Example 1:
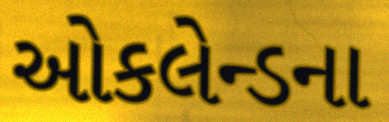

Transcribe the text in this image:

ઓકલેન્ડના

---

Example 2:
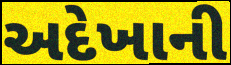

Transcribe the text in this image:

અદેખાની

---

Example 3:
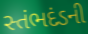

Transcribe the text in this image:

સ્તંભદંડની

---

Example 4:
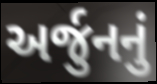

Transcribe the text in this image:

અર્જુનનું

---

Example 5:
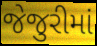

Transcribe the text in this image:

જેજુરીમાં